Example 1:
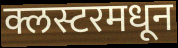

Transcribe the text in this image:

क्लस्टरमधून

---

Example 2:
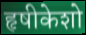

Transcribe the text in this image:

हृषीकेशो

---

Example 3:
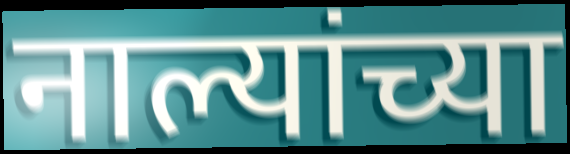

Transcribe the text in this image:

नाल्यांच्या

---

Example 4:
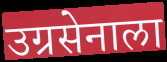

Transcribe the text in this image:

उग्रसेनाला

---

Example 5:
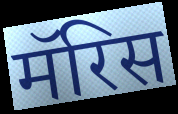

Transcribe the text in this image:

मॅरिस